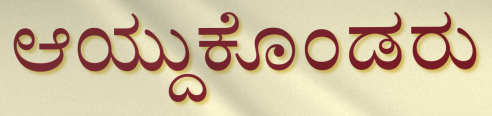
ಆಯ್ದುಕೊಂಡರು